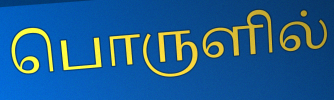
பொருளில்